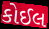
કોઈલ